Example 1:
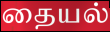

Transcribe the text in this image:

தையல்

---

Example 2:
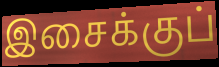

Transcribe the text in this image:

இசைக்குப்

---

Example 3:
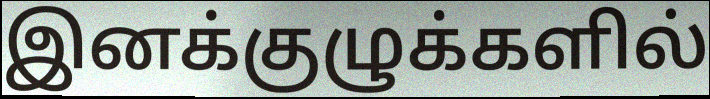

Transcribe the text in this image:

இனக்குழுக்களில்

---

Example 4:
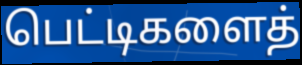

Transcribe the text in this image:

பெட்டிகளைத்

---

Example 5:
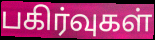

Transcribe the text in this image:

பகிர்வுகள்